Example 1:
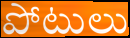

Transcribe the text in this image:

పోటులు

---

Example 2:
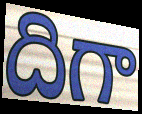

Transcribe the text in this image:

దిగా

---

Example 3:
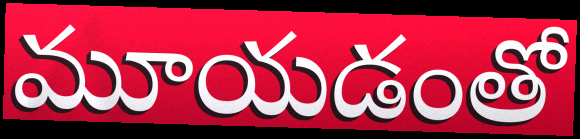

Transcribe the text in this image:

మూయడంతో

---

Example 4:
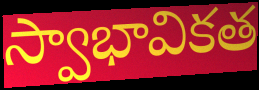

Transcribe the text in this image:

స్వాభావికత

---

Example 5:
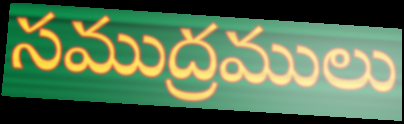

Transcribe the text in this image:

సముద్రములు